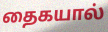
தைகயால்